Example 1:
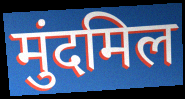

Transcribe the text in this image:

मुंदमिल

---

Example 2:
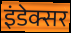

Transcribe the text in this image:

इंडेक्सर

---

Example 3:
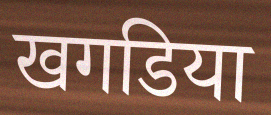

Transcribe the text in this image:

खगडिया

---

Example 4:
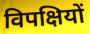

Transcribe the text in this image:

विपक्षियों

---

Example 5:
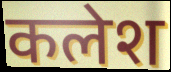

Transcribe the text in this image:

कलेश